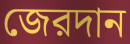
জেরদান